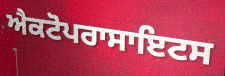
ਐਕਟੋਪਰਾਸਾਇਟਸ